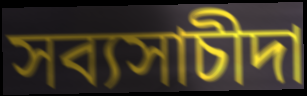
সব্যসাচীদা